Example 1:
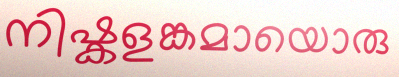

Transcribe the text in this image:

നിഷ്കളങ്കമായൊരു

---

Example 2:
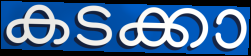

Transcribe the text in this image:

കടക്കാ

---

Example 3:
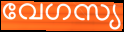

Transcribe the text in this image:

വേഗസ്യ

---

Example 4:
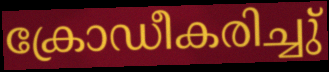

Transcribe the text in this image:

ക്രോഡീകരിച്ചു്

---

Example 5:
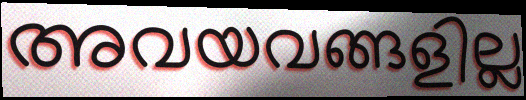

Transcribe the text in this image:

അവയവങ്ങളില്ല